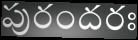
పురందరః